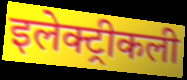
इलेक्ट्रीकली